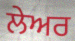
ਲੇਅਰ